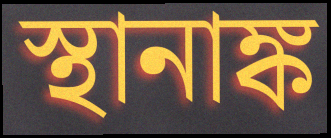
স্থানাঙ্ক